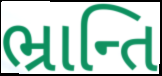
ભ્રાન્તિ